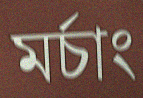
মৰ্চাং